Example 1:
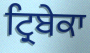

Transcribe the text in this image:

ਟ੍ਰਿਬੇਕਾ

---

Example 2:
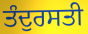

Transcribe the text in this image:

ਤੰਦੁਰਸਤੀ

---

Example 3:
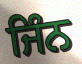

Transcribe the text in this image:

ਜਿੰਨ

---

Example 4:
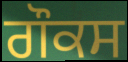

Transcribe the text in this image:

ਗੌਕਸ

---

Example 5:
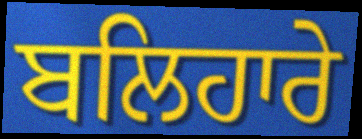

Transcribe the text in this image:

ਬਲਿਹਾਰੇ